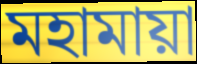
মহামায়া